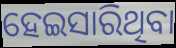
ହେଇସାରିଥିବା